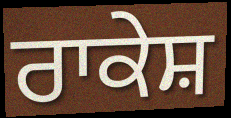
ਰਾਕੇਸ਼